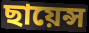
ছায়েন্স